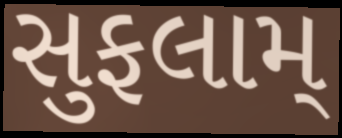
સુફલામ્